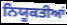
ਨਿਯੂਕਤੀਆਂ